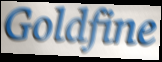
Goldfine